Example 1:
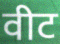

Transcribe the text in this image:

वीट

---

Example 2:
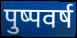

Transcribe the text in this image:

पुष्पवर्ष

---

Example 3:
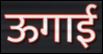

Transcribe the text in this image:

ऊगाई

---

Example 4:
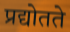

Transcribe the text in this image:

प्रद्योतते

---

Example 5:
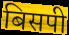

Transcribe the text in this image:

बिसपी